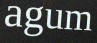
agum